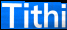
Tithi